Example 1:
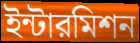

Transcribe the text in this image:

ইন্টারমিশন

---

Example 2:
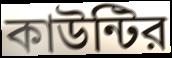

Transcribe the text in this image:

কাউন্টির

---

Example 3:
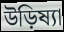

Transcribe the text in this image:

উড়িষ্যা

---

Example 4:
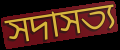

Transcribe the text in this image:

সদাসত্য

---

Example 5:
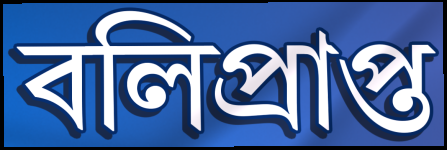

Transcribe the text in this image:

বলিপ্রাপ্ত